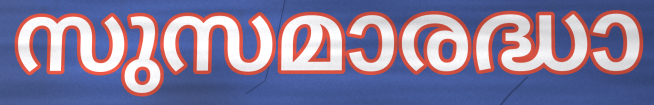
സുസമാരദ്ധാ